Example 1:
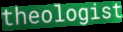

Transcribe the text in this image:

theologist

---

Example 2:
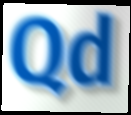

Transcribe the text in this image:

Qd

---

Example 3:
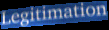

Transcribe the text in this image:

Legitimation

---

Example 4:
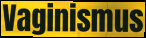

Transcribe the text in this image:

Vaginismus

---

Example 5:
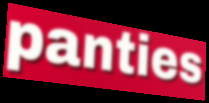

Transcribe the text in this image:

panties